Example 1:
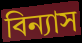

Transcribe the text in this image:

বিন্যাস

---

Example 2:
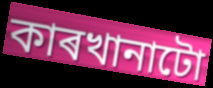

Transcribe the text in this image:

কাৰখানাটো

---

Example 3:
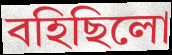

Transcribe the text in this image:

বহিছিলো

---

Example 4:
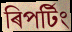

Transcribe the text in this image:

ৰিপৰ্টিং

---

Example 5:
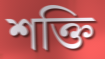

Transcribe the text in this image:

শক্তি